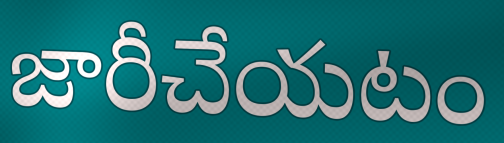
జారీచేయటం